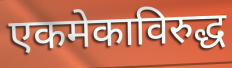
एकमेकाविरुद्ध